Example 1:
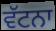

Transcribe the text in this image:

ਵੱਟਨਾ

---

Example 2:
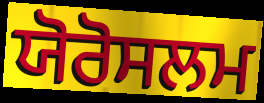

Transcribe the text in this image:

ਯੋਰੋਸਲਮ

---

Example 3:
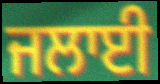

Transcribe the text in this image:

ਜਲਾਈ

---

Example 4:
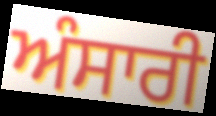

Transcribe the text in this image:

ਅੰਸਾਰੀ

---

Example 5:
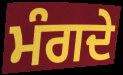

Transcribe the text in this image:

ਮੰਗਦੇ